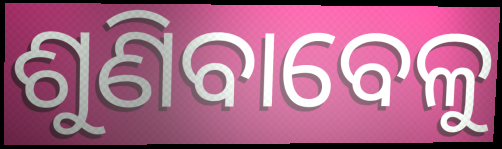
ଶୁଣିବାବେଳୁ